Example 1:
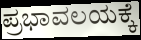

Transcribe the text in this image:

ಪ್ರಭಾವಲಯಕ್ಕೆ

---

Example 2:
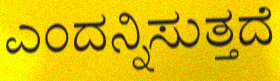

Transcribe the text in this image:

ಎಂದನ್ನಿಸುತ್ತದೆ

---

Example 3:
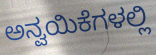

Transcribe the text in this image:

ಅನ್ವಯಿಕೆಗಳಲ್ಲಿ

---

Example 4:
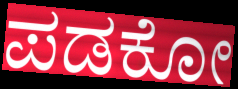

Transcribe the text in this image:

ಪಡಕೋ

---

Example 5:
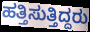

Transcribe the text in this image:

ಹತ್ತಿಸುತ್ತಿದ್ದರು